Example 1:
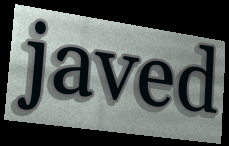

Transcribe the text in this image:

javed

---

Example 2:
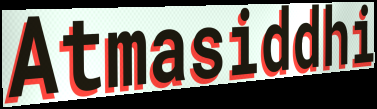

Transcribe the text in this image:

Atmasiddhi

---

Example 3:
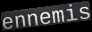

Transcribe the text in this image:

ennemis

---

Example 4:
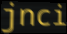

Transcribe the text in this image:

jnci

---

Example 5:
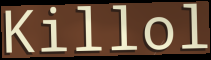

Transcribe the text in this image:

Killol